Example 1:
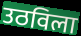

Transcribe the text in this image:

उठविला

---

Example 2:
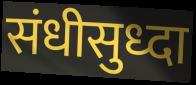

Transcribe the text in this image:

संधीसुध्दा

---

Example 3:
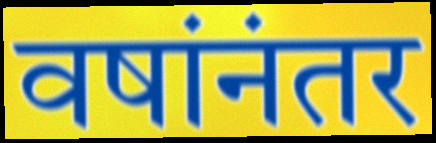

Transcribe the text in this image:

वषांनंतर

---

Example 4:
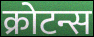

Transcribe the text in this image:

क्रोटन्स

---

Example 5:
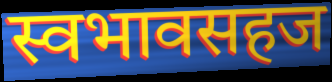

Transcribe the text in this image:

स्वभावसहज